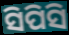
ସିପିସି